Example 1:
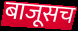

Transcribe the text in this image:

बाजूसच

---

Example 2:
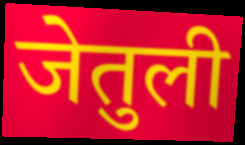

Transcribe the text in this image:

जेतुली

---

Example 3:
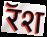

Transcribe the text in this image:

रॅश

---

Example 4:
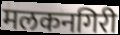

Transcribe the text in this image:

मलकनगिरी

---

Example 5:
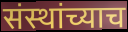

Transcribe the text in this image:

संस्थांच्याच